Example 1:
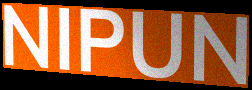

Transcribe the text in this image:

NIPUN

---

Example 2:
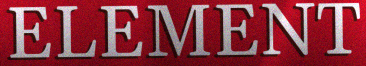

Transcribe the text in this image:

ELEMENT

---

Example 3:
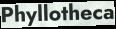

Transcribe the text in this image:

Phyllotheca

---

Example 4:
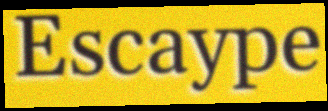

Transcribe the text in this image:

Escaype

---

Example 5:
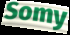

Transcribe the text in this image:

Somy